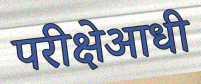
परीक्षेआधी